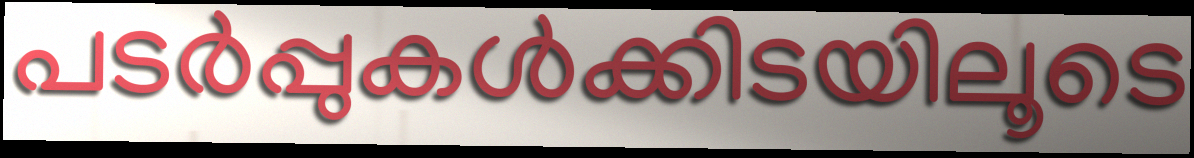
പടർപ്പുകൾക്കിടയിലൂടെ